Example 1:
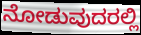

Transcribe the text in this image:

ನೋಡುವುದರಲ್ಲಿ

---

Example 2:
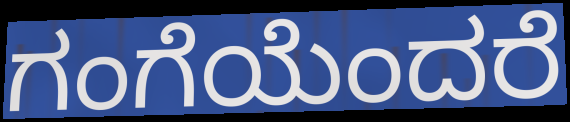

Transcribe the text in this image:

ಗಂಗೆಯೆಂದರೆ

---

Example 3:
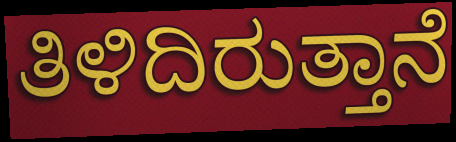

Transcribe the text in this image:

ತಿಳಿದಿರುತ್ತಾನೆ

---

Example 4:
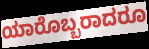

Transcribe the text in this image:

ಯಾರೊಬ್ಬರಾದರೂ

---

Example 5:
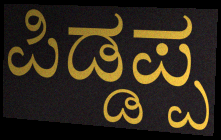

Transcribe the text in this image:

ಪಿಡ್ಡಪ್ಪ